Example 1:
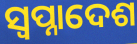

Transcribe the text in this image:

ସ୍ବପ୍ନାଦେଶ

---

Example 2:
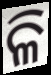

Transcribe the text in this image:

ଳି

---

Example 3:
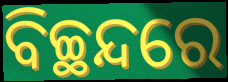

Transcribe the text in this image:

ବିଚ୍ଛନ୍ଦରେ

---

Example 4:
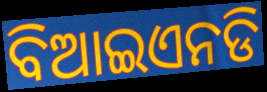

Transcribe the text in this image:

ବିଆଇଏନଡି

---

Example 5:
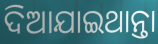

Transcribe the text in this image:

ଦିଆଯାଇଥାନ୍ତା